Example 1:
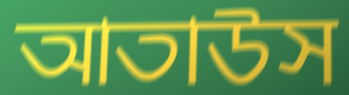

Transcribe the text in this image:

আতাউস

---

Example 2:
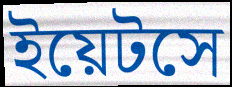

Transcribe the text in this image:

ইয়েটসে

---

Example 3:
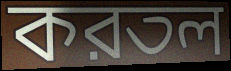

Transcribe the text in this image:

করতল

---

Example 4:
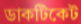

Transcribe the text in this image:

ডাকটিকেট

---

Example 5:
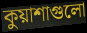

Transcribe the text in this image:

কুয়াশাগুলো